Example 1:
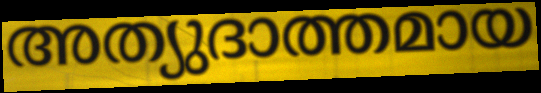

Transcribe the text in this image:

അത്യുദാത്തമായ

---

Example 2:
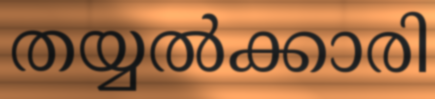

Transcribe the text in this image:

തയ്യൽക്കാരി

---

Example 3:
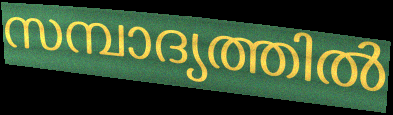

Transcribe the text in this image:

സമ്പാദ്യത്തിൽ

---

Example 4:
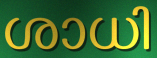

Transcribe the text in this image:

ശാധി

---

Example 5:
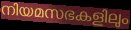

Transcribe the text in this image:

നിയമസഭകളിലും